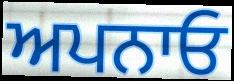
ਅਪਨਾਓ